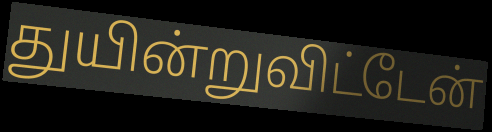
துயின்றுவிட்டேன்